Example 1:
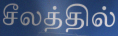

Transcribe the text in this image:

சீலத்தில்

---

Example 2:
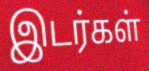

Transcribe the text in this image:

இடர்கள்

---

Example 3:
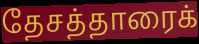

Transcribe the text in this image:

தேசத்தாரைக்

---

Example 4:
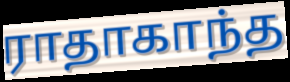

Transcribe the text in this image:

ராதாகாந்த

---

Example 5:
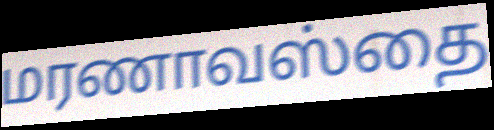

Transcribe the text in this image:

மரணாவஸ்தை